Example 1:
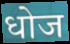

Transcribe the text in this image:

धोज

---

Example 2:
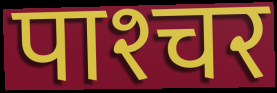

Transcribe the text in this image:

पाश्चर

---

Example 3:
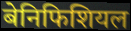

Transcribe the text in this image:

बेनिफिशियल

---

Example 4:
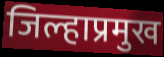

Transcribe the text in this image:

जिल्हाप्रमुख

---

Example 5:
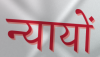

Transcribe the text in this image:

न्यायों